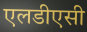
एलडीएसी